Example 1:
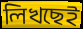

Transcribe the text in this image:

লিখছেই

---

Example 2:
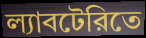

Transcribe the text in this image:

ল্যাবটেরিতে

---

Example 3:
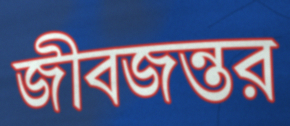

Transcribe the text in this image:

জীবজন্তর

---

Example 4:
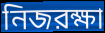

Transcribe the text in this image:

নিজরক্ষা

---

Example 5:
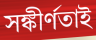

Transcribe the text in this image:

সঙ্কীর্ণতাই